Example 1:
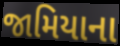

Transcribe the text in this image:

જામિયાના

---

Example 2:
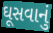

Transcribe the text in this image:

ઘૂસવાનું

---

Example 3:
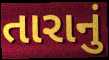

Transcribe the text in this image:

તારાનું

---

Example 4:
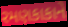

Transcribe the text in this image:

રમણકાકાને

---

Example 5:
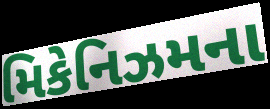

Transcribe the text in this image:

મિકેનિઝમના